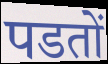
पडतों